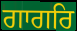
ਗਾਗਰਿ